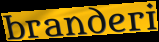
branderi